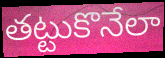
తట్టుకొనేలా